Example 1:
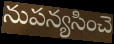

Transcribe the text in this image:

నుపన్యసించె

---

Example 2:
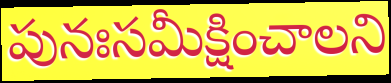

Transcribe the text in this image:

పునఃసమీక్షించాలని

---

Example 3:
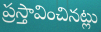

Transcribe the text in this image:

ప్రస్తావించినట్లు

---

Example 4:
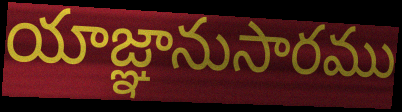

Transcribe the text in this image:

యాజ్ఞానుసారము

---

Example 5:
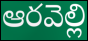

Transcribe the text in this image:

ఆరవెల్లి